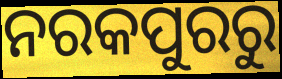
ନରକପୁରରୁ